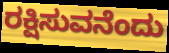
ರಕ್ಷಿಸುವನೆಂದು